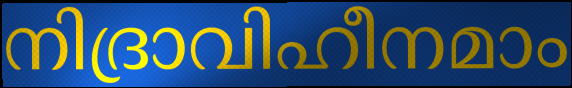
നിദ്രാവിഹീനമാം